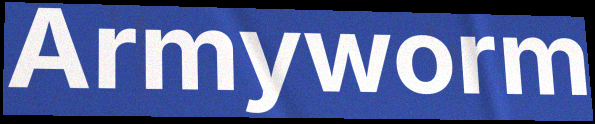
Armyworm